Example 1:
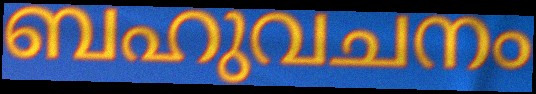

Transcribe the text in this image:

ബഹുവചനം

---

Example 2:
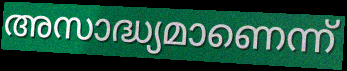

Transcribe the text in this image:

അസാദ്ധ്യമാണെന്ന്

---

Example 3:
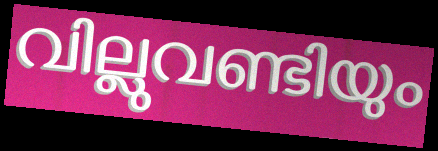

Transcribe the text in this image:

വില്ലുവണ്ടിയും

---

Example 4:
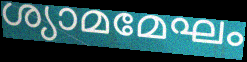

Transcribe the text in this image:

ശ്യാമമേഘം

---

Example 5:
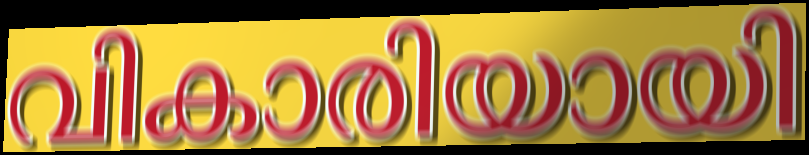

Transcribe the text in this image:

വികാരിയായി